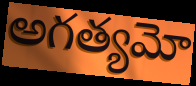
అగత్యమో